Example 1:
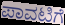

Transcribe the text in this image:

ಪಾವಟಿಗೆ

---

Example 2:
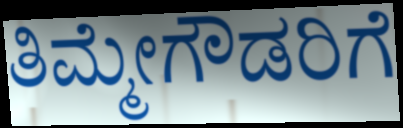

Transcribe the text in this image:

ತಿಮ್ಮೇಗೌಡರಿಗೆ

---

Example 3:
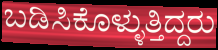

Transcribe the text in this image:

ಬಡಿಸಿಕೊಳ್ಳುತ್ತಿದ್ದರು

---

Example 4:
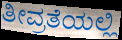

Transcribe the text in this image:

ತೀವ್ರತೆಯಲ್ಲಿ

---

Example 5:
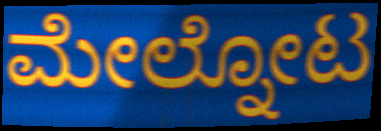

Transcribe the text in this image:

ಮೇಲ್ನೋಟ